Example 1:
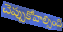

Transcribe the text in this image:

చెప్పుకోవాల్సింది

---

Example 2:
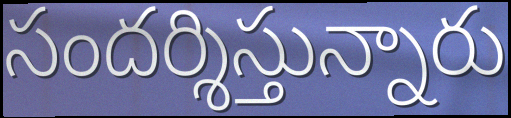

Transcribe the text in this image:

సందర్శిస్తున్నారు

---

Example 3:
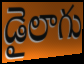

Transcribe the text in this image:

డైలాగు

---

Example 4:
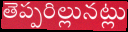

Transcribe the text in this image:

తెప్పరిల్లునట్లు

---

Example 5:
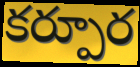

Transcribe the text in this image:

కర్పూర